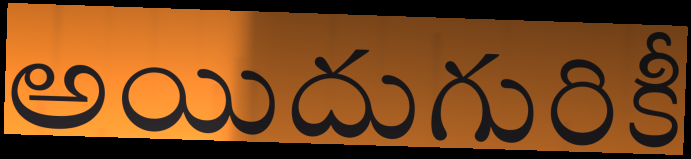
అయిదుగురికీ